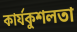
কাৰ্যকুশলতা